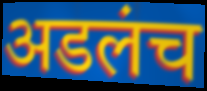
अडलंच